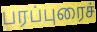
பரப்புரைச்